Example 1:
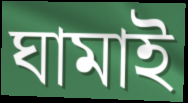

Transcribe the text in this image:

ঘামাই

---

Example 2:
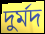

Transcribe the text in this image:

দুর্মদ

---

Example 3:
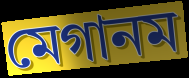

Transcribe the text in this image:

মেগানম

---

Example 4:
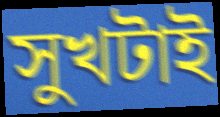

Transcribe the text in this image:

সুখটাই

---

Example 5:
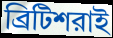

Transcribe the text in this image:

ব্রিটিশরাই